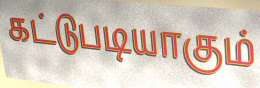
கட்டுபடியாகும்